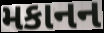
મકાનન